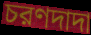
চরণদাদা